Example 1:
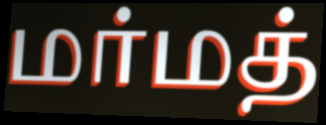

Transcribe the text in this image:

மர்மத்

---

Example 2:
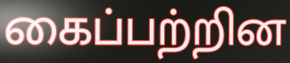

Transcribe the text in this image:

கைப்பற்றின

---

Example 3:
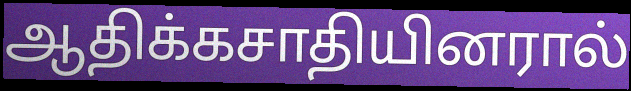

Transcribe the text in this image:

ஆதிக்கசாதியினரால்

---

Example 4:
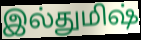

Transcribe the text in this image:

இல்துமிஷ்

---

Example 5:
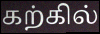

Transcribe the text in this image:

கற்கில்